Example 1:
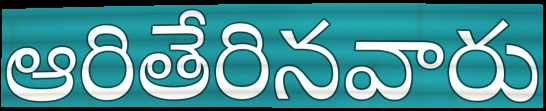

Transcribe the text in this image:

ఆరితేరినవారు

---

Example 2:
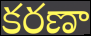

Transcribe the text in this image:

కరణా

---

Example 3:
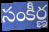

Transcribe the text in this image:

సంకీర్ణ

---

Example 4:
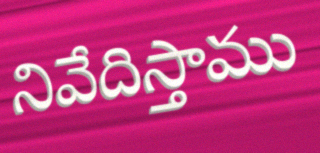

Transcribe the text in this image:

నివేదిస్తాము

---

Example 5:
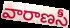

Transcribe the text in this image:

వారాణసీ